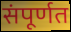
संपूर्णत